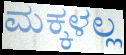
ಮಕ್ಕಳಲ್ಲ